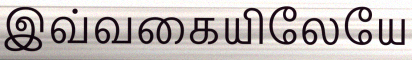
இவ்வகையிலேயே